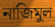
নাজিমুল